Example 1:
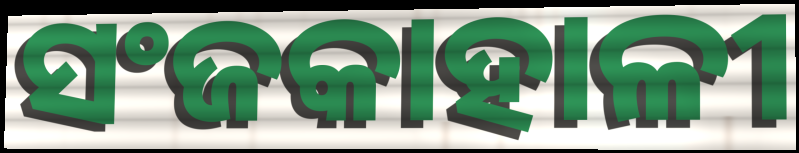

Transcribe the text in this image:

ସଂଜକାହାଳୀ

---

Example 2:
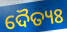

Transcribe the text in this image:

ଦୈତ୍ୟଃ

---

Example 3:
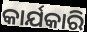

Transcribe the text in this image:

କାର୍ଯକାରି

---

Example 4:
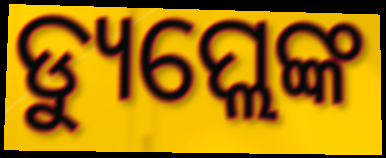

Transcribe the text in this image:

ଡ୍ୟୁପ୍ଲେଙ୍କ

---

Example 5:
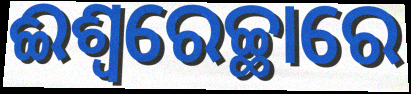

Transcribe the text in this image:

ଈଶ୍ୱରେଚ୍ଛାରେ